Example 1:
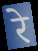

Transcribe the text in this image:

रे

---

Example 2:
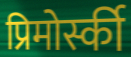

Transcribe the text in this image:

प्रिमोर्स्की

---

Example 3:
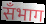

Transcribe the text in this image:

सँभाग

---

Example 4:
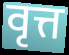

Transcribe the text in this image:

वृत्त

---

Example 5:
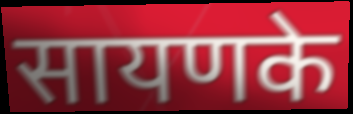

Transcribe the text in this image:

सायणके